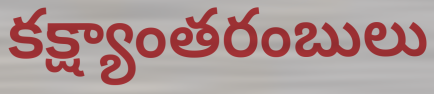
కక్ష్యాంతరంబులు